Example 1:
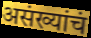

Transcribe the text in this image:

असंख्यांचं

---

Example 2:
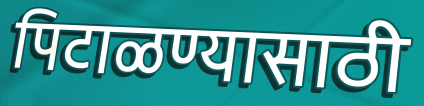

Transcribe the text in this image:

पिटाळण्यासाठी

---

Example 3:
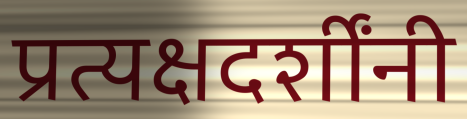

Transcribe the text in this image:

प्रत्यक्षदर्शींनी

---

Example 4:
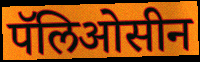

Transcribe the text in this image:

पॅलिओसीन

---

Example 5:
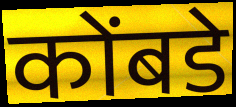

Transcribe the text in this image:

कोंबडे